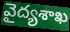
వైద్యశాఖ